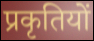
प्रकृतियों